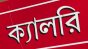
ক্যালরি